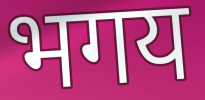
भगय